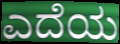
ಎದೆಯ